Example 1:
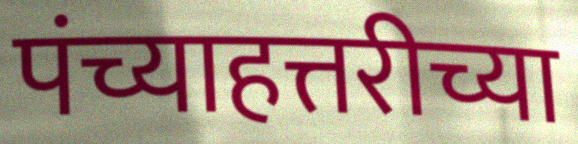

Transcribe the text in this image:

पंच्याहत्तरीच्या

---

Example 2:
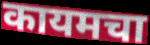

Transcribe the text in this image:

कायमचा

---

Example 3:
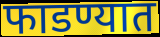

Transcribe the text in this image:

फाडण्यात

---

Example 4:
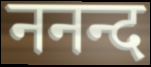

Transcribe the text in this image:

ननन्द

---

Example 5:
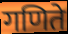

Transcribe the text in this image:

गणिते